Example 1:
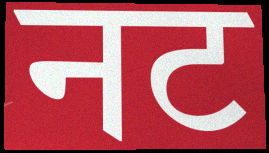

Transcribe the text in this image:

नट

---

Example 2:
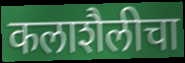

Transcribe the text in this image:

कलाशैलीचा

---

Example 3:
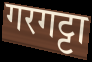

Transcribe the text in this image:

गरगट्टा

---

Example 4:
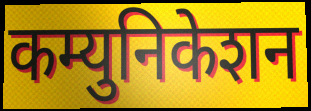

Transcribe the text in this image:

कम्युनिकेशन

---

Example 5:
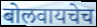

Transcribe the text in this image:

बोलवायचेच